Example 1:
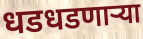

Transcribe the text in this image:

धडधडणाऱ्या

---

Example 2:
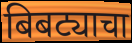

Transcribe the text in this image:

बिबट्याचा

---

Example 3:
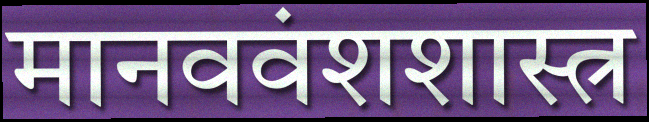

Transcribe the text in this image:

मानववंशशास्त्र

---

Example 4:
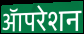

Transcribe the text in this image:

ॲापरेशन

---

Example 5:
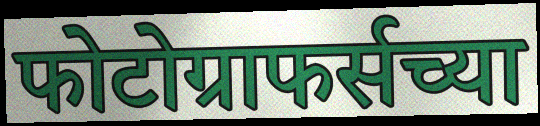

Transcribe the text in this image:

फोटोग्राफर्सच्या